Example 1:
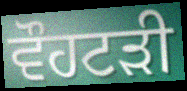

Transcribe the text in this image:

ਵੌਹਟੜੀ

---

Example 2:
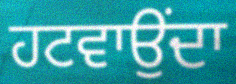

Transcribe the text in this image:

ਹਟਵਾਉਂਦਾ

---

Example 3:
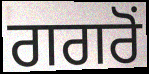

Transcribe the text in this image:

ਗਗਰੋਂ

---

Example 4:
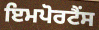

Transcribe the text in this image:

ਇਮਪੋਰਟੈਂਸ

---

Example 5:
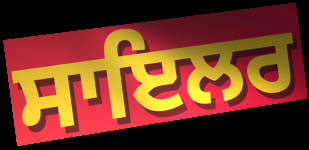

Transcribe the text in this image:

ਸਾਇਲਰ